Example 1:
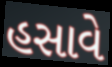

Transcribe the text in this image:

હસાવે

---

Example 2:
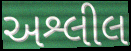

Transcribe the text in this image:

અશ્લીલ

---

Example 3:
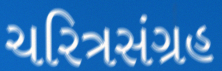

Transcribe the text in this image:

ચરિત્રસંગ્રહ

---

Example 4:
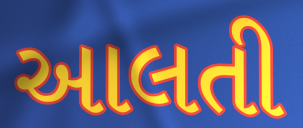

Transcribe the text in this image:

આલતી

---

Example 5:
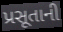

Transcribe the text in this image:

પ્રસૂતાની